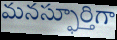
మనస్ఫూర్తిగా